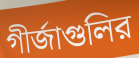
গীর্জাগুলির